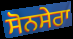
ਸੋਨਸੇਰਾ